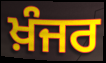
ਖ਼ੰਜਰ